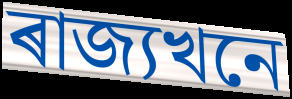
ৰাজ্যখনে